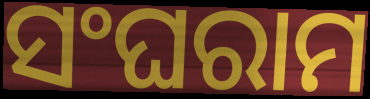
ସଂଘରାମ